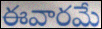
ఈవారమే